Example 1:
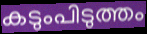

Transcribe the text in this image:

കടുംപിടുത്തം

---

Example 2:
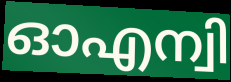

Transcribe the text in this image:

ഓഎന്വി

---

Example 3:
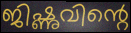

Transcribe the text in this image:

ജിഷ്ണുവിന്റെ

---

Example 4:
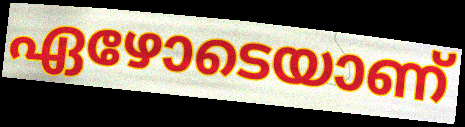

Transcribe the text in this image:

ഏഴോടെയാണ്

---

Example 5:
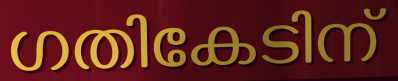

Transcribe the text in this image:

ഗതികേടിന്